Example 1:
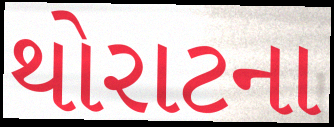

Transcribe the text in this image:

થોરાટના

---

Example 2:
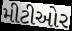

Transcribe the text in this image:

મીટીઓર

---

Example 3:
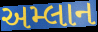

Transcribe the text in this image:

અમ્લાન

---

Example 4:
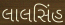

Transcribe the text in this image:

લાલસિંહ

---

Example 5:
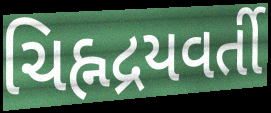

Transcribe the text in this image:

ચિહ્નદ્રયવર્તી